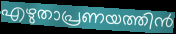
എഴുതാപ്രണയത്തിൻ